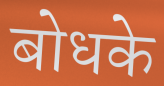
बोधके